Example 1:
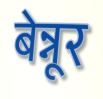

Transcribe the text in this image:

बेन्नूर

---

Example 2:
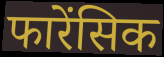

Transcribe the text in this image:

फारेंसिक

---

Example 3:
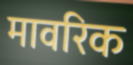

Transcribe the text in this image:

मावरिक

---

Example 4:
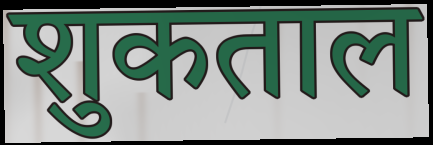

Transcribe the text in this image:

शुकताल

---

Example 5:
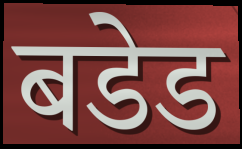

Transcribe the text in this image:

बडेड